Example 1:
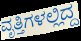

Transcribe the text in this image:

ವೃತ್ತಿಗಳಲ್ಲಿದ್ದ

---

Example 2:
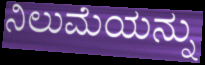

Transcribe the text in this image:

ನಿಲುಮೆಯನ್ನು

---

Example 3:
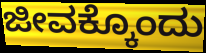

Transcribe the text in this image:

ಜೀವಕ್ಕೊಂದು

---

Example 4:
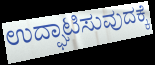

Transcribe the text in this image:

ಉದ್ಘಾಟಿಸುವುದಕ್ಕೆ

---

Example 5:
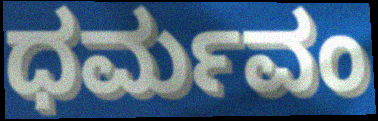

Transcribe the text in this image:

ಧರ್ಮವಂ